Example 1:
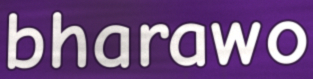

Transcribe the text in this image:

bharawo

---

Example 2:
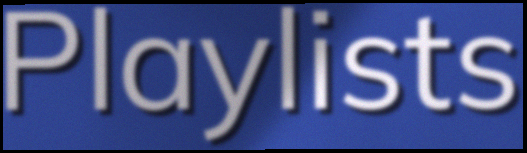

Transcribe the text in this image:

Playlists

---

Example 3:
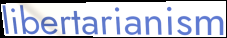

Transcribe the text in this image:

libertarianism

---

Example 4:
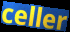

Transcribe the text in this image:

celler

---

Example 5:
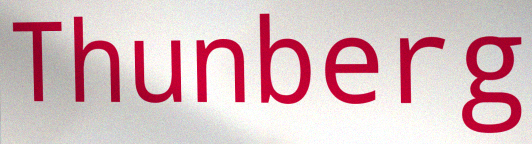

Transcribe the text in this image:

Thunberg